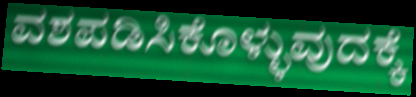
ವಶಪಡಿಸಿಕೊಳ್ಳುವುದಕ್ಕೆ